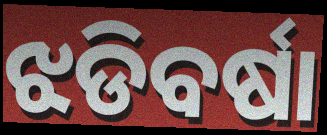
ଝଡିବର୍ଷା